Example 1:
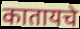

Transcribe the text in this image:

कातायचे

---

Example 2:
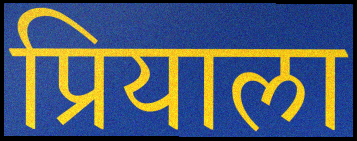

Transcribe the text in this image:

प्रियाला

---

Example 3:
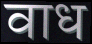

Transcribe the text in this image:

वाध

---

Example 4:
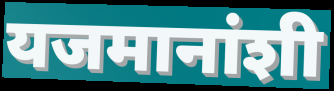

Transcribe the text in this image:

यजमानांशी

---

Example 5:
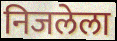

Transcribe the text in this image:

निजलेला